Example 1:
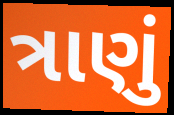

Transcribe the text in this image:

ત્રાણું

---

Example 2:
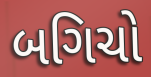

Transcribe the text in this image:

બગિચો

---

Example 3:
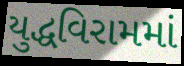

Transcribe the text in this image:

યુદ્ધવિરામમાં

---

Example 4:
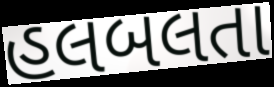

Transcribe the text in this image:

હલબલતા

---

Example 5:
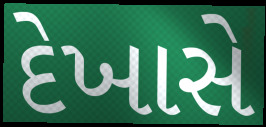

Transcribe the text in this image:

દેખાસે